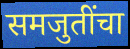
समजुतींचा